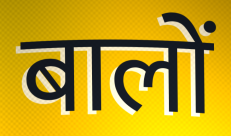
बालों